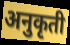
अनुकृती